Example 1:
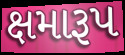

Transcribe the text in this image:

ક્ષમારૂપ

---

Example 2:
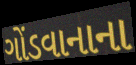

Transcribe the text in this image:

ગોંડવાનાના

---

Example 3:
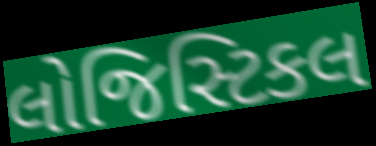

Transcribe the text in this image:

લોજિસ્ટિકલ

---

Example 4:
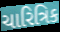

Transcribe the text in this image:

ચારિત્રિક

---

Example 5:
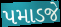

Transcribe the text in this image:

પમાડજે